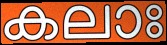
കലാഃ